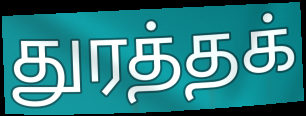
துரத்தக்